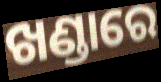
ଖଣ୍ଡାରେ